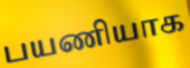
பயணியாக